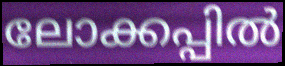
ലോക്കപ്പിൽ